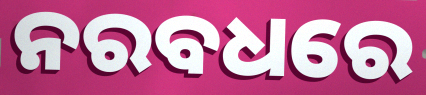
ନରବଧରେ